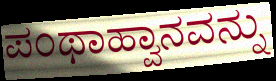
ಪಂಥಾಹ್ವಾನವನ್ನು